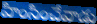
హింసించేవాడు